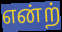
என்ற்